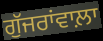
ਗੁੱਜਰਾਂਵਾਲ਼ਾ